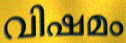
വിഷമം